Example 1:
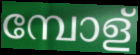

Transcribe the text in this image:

മ്പോള്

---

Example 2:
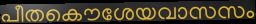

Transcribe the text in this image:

പീതകൌശേയവാസസം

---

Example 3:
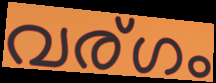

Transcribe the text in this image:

വര്ഗം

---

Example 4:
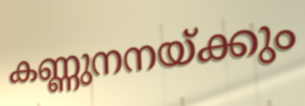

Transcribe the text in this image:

കണ്ണുനനയ്ക്കും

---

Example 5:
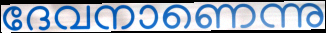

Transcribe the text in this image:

ദേവനാണെന്നു